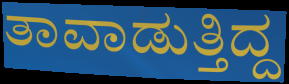
ತಾವಾಡುತ್ತಿದ್ದ